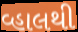
વ્હાલથી